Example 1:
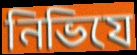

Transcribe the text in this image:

নিভিযে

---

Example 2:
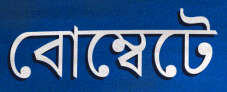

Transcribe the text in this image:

বোম্বেটে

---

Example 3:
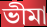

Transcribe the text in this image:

ভীমা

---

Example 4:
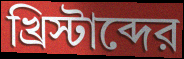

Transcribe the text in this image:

খ্রিস্টাব্দের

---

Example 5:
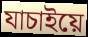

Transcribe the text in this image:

যাচাইয়ে